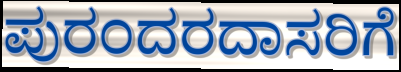
ಪುರಂದರದಾಸರಿಗೆ